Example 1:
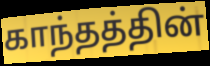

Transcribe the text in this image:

காந்தத்தின்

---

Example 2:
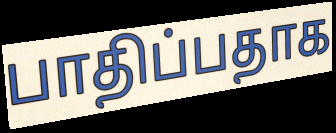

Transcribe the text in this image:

பாதிப்பதாக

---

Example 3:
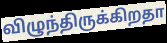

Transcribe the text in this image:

விழுந்திருக்கிறதா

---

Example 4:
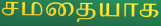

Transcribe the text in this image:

சமதையாக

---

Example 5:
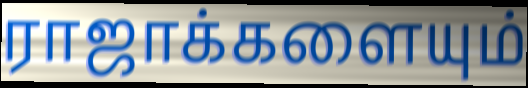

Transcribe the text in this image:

ராஜாக்களையும்